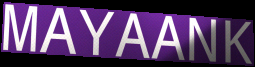
MAYAANK